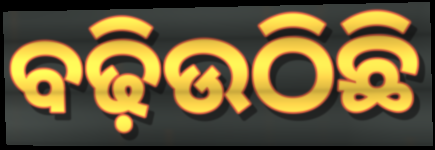
ବଢ଼ିଉଠିଛି